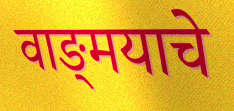
वाङ्‍मयाचे